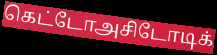
கெட்டோஅசிடோடிக்